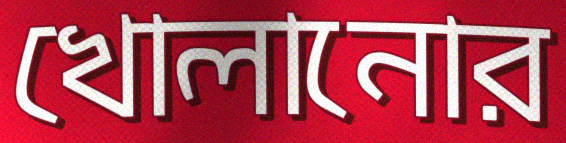
খোলানোর